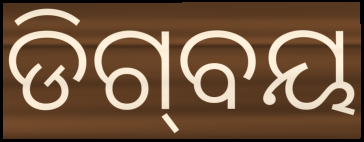
ଡିଗ୍‌ବୟ